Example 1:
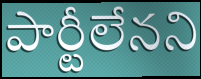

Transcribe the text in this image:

పార్టీలేనని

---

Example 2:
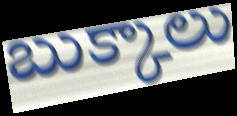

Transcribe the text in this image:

బుక్కాలు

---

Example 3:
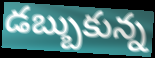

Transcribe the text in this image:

డబ్బుకున్న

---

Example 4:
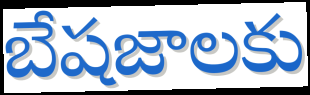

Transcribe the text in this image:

బేషజాలకు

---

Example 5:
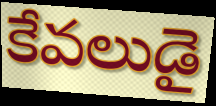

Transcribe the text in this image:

కేవలుడై